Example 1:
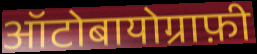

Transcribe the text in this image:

ऑटोबायोग्राफ़ी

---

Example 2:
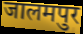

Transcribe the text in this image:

जालमपुर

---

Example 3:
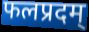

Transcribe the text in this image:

फलप्रदम्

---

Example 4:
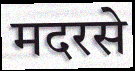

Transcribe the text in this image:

मदरसे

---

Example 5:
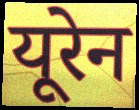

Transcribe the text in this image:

यूरेन